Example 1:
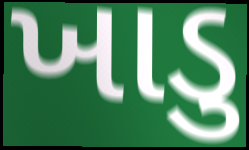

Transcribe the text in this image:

ખાડુ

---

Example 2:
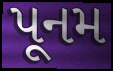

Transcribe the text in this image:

પૂનમ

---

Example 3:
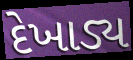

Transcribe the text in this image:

દેખાડ્ય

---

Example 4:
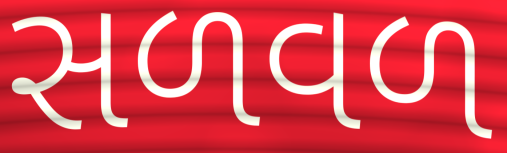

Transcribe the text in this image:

સળવળ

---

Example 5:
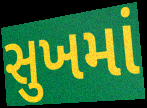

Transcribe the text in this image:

સુખમાં